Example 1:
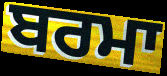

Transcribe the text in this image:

ਬਰਮਾ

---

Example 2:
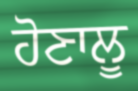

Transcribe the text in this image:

ਹੋਣਾਲੂ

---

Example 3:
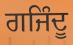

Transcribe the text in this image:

ਗਜਿੰਦੂ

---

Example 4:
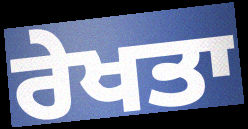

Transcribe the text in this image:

ਰੇਖਤਾ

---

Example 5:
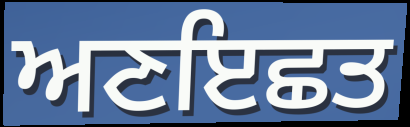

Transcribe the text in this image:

ਅਣਇਛਤ